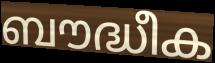
ബൗദ്ധീക